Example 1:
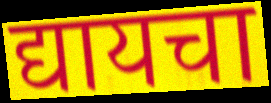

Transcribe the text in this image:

द्यायचा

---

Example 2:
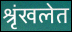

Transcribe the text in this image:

श्रृंखलेत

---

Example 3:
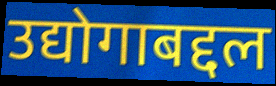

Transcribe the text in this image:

उद्योगाबद्दल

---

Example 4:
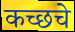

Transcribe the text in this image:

कच्छचे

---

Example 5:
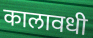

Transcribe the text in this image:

कालावधी